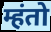
म्हंतो